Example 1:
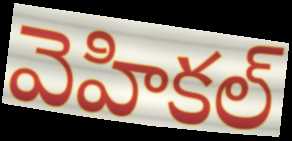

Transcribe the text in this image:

వెహికల్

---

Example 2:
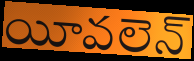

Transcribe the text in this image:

యీవలెన్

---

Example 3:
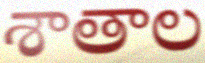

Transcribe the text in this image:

శాతాల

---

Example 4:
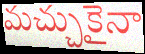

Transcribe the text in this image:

మచ్చుకైనా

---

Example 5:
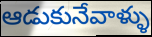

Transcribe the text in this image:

ఆడుకునేవాళ్ళు